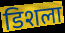
डिशला